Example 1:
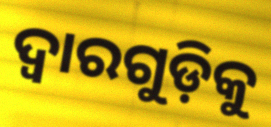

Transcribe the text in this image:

ଦ୍ୱାରଗୁଡ଼ିକୁ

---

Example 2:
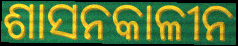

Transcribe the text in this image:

ଶାସନକାଳୀନ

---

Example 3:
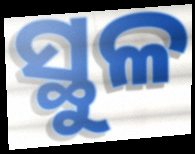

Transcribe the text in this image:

ସ୍ଥୁଳ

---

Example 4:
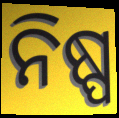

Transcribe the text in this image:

ନିଷ୍ପ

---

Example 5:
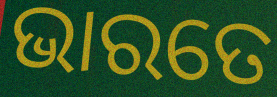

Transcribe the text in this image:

ଭାରତେ